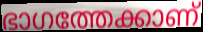
ഭാഗത്തേക്കാണ്